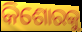
କିଶୋରକୁ